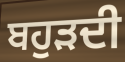
ਬਹੁੜਦੀ